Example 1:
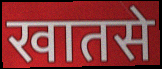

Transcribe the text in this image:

खातसे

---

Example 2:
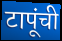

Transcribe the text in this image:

टापूंची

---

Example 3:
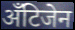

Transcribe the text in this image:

अँटिजेन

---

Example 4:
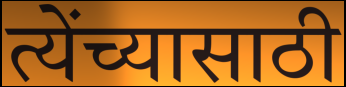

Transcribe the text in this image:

त्येंच्यासाठी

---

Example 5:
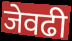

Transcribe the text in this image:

जेवढी